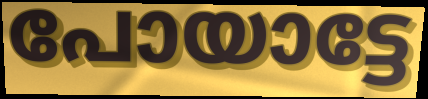
പോയാട്ടേ